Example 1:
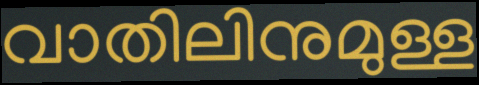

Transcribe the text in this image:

വാതിലിനുമുള്ള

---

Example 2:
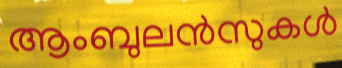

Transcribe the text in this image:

ആംബുലൻസുകൾ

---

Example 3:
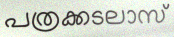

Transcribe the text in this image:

പത്രക്കടലാസ്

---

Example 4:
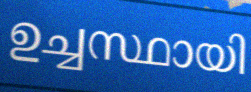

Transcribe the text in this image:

ഉച്ചസ്ഥായി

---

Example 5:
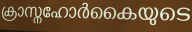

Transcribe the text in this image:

ക്രാസ്നഹോർകൈയുടെ